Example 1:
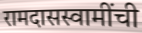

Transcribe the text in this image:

रामदासस्वामींची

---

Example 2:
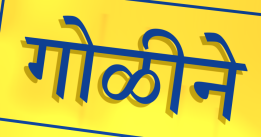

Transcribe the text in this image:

गोळीने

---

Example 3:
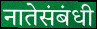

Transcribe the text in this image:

नातेसंबंधी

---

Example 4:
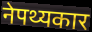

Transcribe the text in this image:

नेपथ्यकार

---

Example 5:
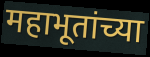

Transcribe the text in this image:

महाभूतांच्या